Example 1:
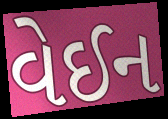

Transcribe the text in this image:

વેઈન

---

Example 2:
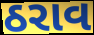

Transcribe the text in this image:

ઠરાવ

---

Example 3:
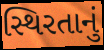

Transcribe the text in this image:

સ્થિરતાનું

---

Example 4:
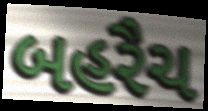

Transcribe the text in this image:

બહરૈચ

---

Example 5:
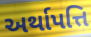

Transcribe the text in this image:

અર્થાપત્તિ